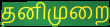
தனிமுறை